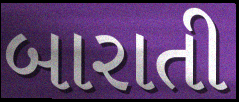
બારાતી